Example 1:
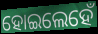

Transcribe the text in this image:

ହୋଇଲେହେଁ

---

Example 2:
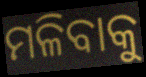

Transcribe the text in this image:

ମଳିବାକୁ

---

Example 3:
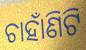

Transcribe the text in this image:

ଚାହାଁଣିଟି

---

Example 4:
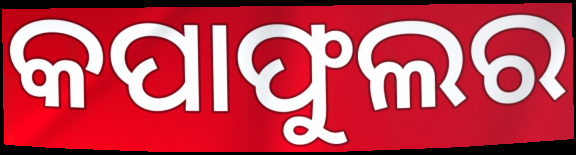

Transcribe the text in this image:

କପାଫୁଲର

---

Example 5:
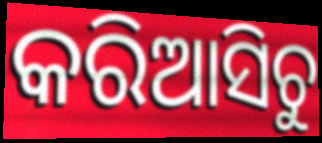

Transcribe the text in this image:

କରିଆସିଚୁ